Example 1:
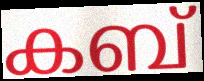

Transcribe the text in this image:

കബ്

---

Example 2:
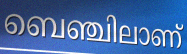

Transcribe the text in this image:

ബെഞ്ചിലാണ്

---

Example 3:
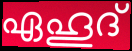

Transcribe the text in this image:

ഏഹൂദ്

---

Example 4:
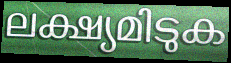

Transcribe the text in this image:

ലക്ഷ്യമിടുക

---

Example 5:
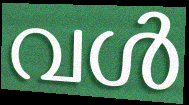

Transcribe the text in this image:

വൾ